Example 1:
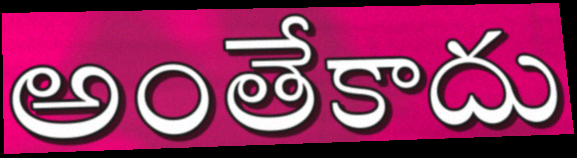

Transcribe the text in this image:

అంతేకాదు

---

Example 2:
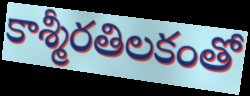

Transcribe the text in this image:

కాశ్మీరతిలకంతో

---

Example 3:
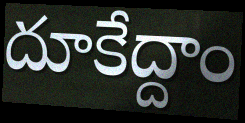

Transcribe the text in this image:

దూకేద్దాం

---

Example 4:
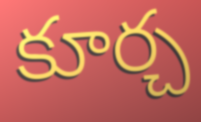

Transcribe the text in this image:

కూర్చ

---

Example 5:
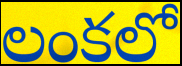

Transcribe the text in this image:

లంకలో